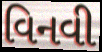
વિનવી